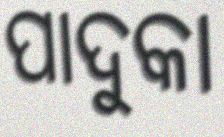
ପାଦୁକା